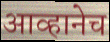
आव्हानेच